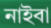
নাইবা